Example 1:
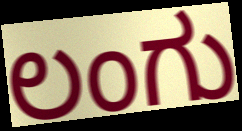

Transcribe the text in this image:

ಲಂಗು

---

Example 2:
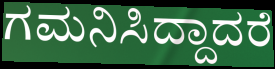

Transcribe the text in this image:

ಗಮನಿಸಿದ್ದಾದರೆ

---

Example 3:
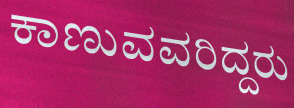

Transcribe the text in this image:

ಕಾಣುವವರಿದ್ದರು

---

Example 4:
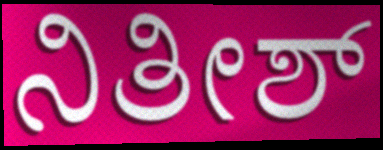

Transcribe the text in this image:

ನಿತೀಶ್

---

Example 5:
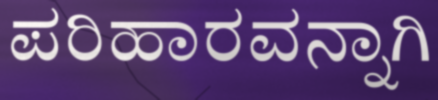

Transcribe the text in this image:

ಪರಿಹಾರವನ್ನಾಗಿ